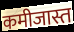
कमीजास्त